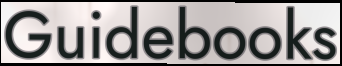
Guidebooks